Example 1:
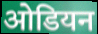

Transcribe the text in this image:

ओडियन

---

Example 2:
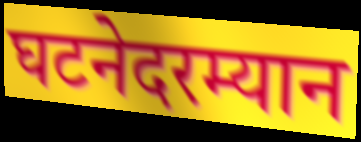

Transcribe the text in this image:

घटनेदरम्यान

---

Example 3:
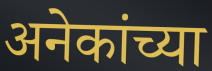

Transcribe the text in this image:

अनेकांच्या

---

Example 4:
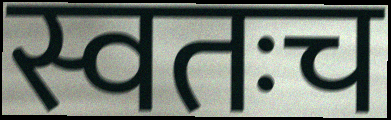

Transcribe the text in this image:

स्वतःच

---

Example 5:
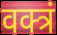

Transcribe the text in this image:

वक्त्रं